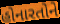
હોનારતોને